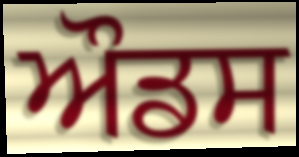
ਔਡਸ